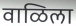
वाळिला